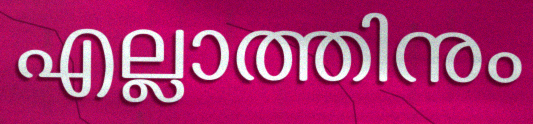
എല്ലാത്തിനും